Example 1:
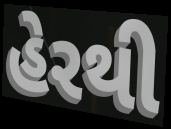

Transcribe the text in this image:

હેરથી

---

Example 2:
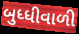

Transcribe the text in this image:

બુધ્ધીવાળી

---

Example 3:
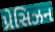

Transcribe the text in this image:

પ્રેસિઝન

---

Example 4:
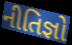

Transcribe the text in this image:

નીતિજ્ઞો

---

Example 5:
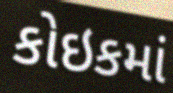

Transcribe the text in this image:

કોઇકમાં